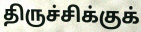
திருச்சிக்குக்